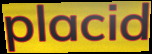
placid